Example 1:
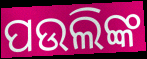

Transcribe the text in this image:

ପଉଲିଙ୍କ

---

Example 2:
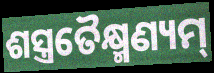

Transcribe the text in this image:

ଶସ୍ତ୍ରତୈକ୍ଷ୍ମଣ୍ୟମ୍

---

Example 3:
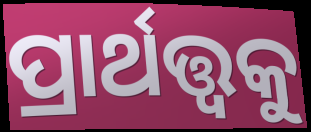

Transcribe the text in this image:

ପ୍ରାର୍ଥତ୍ତ୍ୱକୁ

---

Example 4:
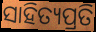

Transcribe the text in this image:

ସାହିତ୍ୟପ୍ରତି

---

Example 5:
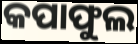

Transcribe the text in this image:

କପାଫୁଲ